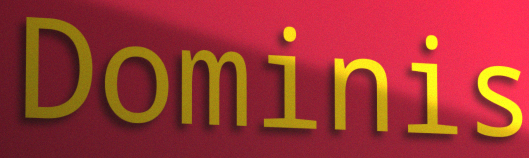
Dominis